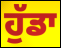
ਹੁੱਡਾ